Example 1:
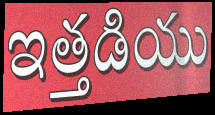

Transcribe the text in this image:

ఇత్తడియు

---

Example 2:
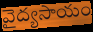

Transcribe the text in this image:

వైద్యసాయం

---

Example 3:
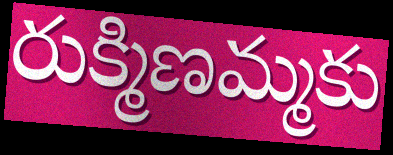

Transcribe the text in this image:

రుక్మిణమ్మకు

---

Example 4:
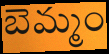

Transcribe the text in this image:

బెమ్మం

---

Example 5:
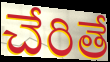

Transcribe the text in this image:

చేరితే